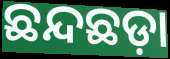
ଛନ୍ଦଛଡ଼ା